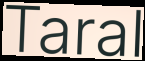
Taral